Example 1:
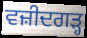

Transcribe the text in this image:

ਵਜ਼ੀਦਗੜ੍ਹ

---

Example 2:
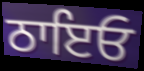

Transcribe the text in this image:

ਠਾਇਓ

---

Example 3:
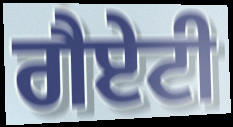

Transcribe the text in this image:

ਗੈਏਟੀ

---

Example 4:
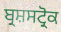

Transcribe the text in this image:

ਬ੍ਰਸ਼ਸਟ੍ਰੋਕ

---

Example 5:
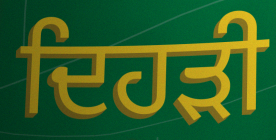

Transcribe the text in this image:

ਦਿਹੜੀ